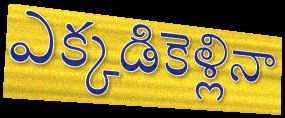
ఎక్కడికెళ్లినా